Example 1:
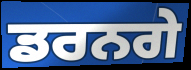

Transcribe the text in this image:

ਡਰਨਗੇ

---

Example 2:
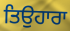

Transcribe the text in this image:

ਤਿਉਹਾਰਾ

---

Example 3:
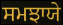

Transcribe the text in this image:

ਸਮਝਾਯੇ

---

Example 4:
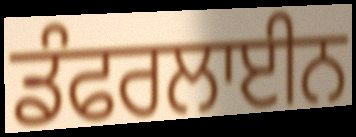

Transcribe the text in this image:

ਡੰਫਰਲਾਈਨ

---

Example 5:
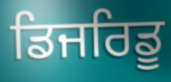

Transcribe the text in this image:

ਡਿਜਰਿਡੂ